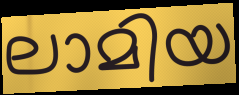
ലാമിയ